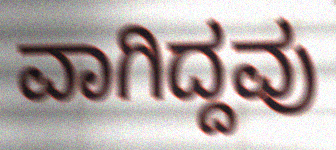
ವಾಗಿದ್ದವು